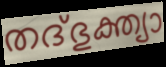
തദ്ഭുക്ത്യാ